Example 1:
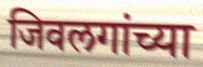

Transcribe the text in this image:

जिवलगांच्या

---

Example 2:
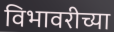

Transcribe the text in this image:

विभावरीच्या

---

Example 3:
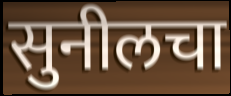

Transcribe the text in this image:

सुनीलचा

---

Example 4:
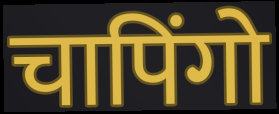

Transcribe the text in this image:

चापिंगो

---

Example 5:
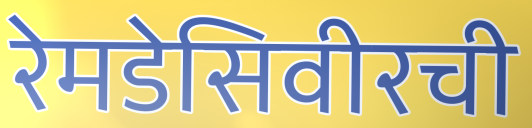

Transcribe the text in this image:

रेमडेसिवीरची